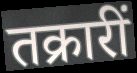
तक्रारीं